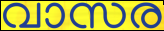
വാസര